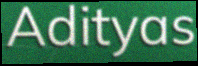
Adityas